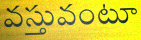
వస్తువంటూ